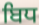
ਬਿਧ